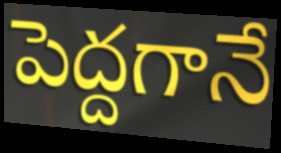
పెద్దగానే